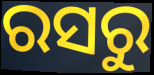
ରସରୁ